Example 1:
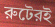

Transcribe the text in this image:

রুটেরই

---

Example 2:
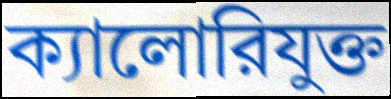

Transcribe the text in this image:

ক্যালোরিযুক্ত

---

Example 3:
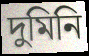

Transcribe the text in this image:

দুমিনি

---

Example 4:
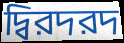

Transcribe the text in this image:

দ্বিরদরদ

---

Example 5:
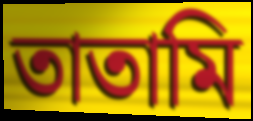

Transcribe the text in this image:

তাতামি